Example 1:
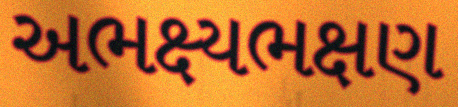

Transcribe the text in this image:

અભક્ષ્યભક્ષણ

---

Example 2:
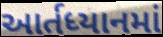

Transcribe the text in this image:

આર્તધ્યાનમાં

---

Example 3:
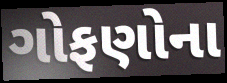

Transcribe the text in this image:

ગોફણોના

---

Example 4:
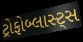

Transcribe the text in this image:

ટ્રોફોબ્લાસ્ટ્સ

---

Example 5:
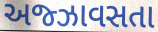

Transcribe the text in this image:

અજ્ઝાવસતા